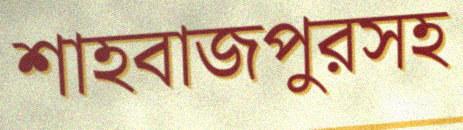
শাহবাজপুরসহ